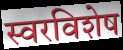
स्वरविशेष